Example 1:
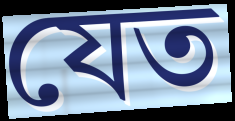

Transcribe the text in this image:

যেত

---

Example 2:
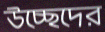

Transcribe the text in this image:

উচ্ছেদের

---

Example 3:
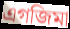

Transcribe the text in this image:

এগজিমা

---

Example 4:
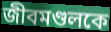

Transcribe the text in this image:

জীবমণ্ডলকে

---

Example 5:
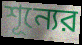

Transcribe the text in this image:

শূন্যের